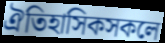
ঐতিহাসিকসকলে